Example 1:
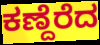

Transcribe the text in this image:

ಕಣ್ದೆರೆದ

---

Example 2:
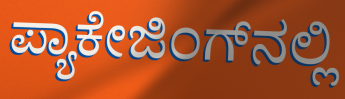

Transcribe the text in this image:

ಪ್ಯಾಕೇಜಿಂಗ್‌ನಲ್ಲಿ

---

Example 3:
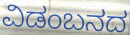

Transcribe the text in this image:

ವಿಡಂಬನದ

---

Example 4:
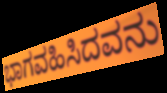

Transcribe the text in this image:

ಭಾಗವಹಿಸಿದವನು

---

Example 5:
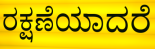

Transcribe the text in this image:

ರಕ್ಷಣೆಯಾದರೆ